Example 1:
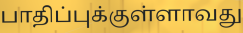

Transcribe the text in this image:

பாதிப்புக்குள்ளாவது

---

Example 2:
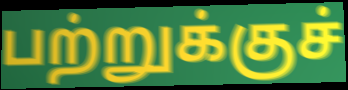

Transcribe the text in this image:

பற்றுக்குச்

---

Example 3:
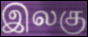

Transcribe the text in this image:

இலகு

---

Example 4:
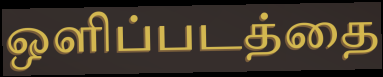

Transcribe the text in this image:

ஒளிப்படத்தை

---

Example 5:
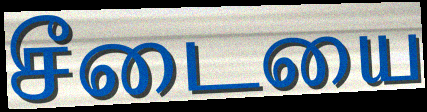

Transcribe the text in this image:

சீடையை